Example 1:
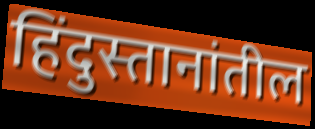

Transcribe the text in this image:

हिंदुस्तानांतील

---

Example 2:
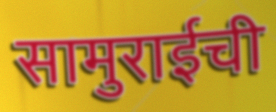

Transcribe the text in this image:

सामुराईची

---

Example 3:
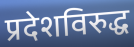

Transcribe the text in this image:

प्रदेशविरुद्ध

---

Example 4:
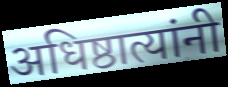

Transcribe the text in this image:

अधिष्ठात्यांनी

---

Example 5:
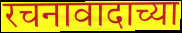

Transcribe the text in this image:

रचनावादाच्या